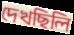
দেখছিলি